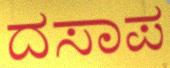
ದಸಾಪ